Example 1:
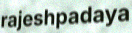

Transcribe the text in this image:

rajeshpadaya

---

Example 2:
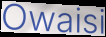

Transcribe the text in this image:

Owaisi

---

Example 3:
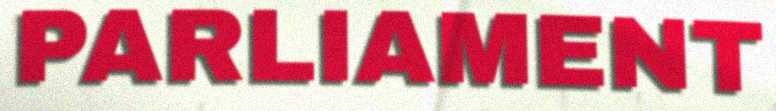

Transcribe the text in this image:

PARLIAMENT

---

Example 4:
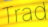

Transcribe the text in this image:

Trad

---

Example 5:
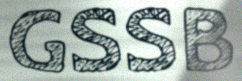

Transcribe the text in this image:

GSSB